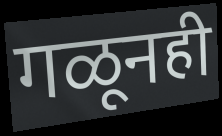
गळूनही